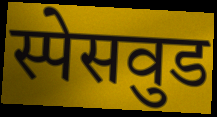
स्पेसवुड